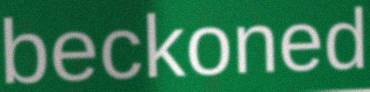
beckoned